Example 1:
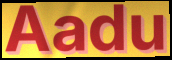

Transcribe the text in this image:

Aadu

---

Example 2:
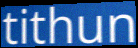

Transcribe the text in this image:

tithun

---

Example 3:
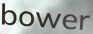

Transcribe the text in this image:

bower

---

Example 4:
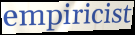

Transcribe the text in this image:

empiricist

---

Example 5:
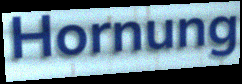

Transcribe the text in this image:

Hornung